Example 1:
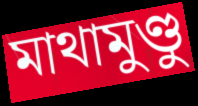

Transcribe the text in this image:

মাথামুণ্ডু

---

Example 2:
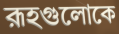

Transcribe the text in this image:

রূহগুলোকে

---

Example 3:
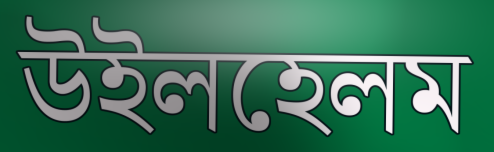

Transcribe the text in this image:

উইলহেলম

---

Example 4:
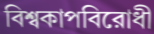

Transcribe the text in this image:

বিশ্বকাপবিরোধী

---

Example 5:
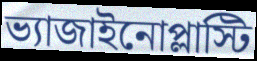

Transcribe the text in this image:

ভ্যাজাইনোপ্লাস্টি